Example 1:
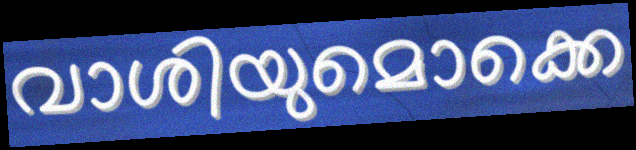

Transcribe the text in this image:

വാശിയുമൊക്കെ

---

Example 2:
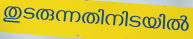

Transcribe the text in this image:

തുടരുന്നതിനിടയിൽ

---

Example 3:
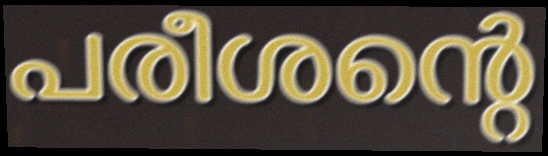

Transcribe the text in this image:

പരീശന്റെ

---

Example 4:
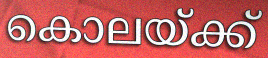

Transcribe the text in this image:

കൊലയ്ക്ക്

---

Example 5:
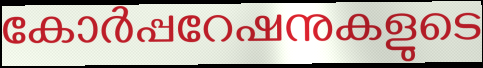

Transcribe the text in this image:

കോർപ്പറേഷനുകളുടെ